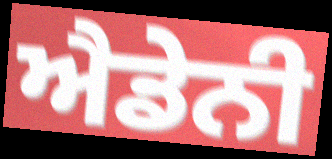
ਐਡੇਨੀ